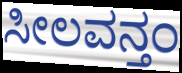
ಸೀಲವನ್ತಂ